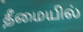
தீமையில்